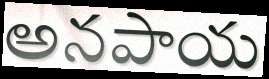
అనపాయ